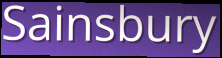
Sainsbury